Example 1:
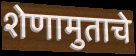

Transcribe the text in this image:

शेणामुताचे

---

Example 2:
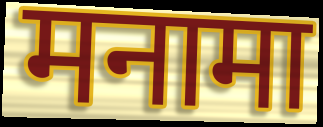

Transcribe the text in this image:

मनामा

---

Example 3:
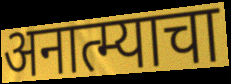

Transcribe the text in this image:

अनात्म्याचा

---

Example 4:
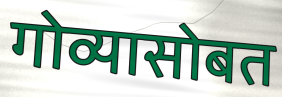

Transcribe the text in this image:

गोव्यासोबत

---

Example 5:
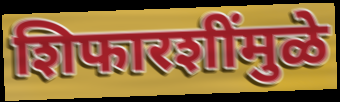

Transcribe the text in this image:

शिफारशींमुळे